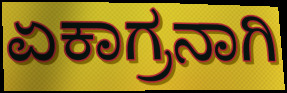
ಏಕಾಗ್ರನಾಗಿ